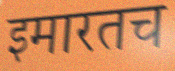
इमारतच